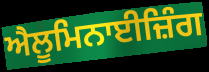
ਐਲੂਮਿਨਾਈਜ਼ਿੰਗ